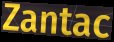
Zantac